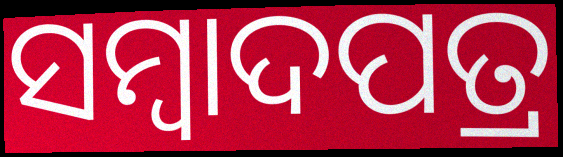
ସମ୍ୱାଦପତ୍ର